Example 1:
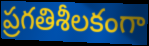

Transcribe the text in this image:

ప్రగతిశీలకంగా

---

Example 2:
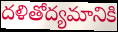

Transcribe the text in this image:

దళితోద్యమానికి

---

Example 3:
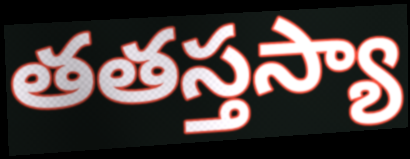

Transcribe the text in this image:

తతస్తస్యా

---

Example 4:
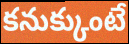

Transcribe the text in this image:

కనుక్కుంటే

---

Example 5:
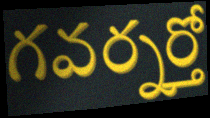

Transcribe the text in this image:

గవర్నర్తో